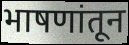
भाषणांतून